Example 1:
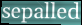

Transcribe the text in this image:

sepalled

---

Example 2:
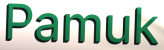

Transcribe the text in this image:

Pamuk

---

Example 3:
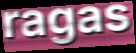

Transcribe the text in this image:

ragas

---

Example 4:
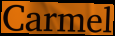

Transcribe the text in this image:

Carmel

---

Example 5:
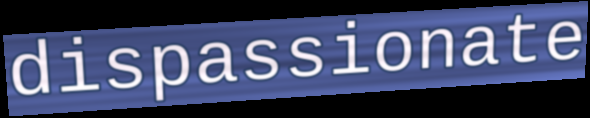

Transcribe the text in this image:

dispassionate